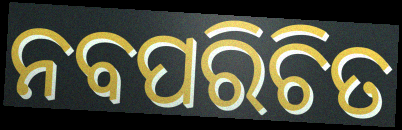
ନବପରିଚିତ